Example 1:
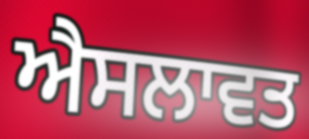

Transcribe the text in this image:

ਐਸਲਾਵਤ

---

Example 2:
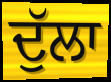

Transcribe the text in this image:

ਦੁੱਲਾ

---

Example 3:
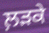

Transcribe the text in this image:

ਲ਼ਡ਼ਕੇ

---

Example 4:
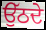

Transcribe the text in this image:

ਉੱਠਦੇ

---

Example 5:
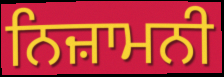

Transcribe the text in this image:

ਨਿਜ਼ਾਮਨੀ